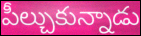
పీల్చుకున్నాడు